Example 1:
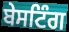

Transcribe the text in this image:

ਬੇਸਟਿੰਗ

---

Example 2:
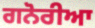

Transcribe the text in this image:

ਗਨੋਰੀਆ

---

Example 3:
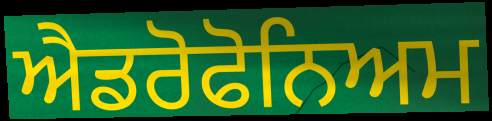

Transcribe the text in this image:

ਐਡਰੋਫੋਨਿਅਮ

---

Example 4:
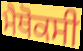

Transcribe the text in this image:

ਮੈਥੋਕਸੀ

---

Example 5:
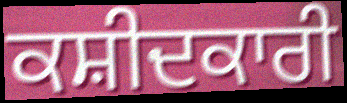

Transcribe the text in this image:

ਕਸ਼ੀਦਕਾਰੀ